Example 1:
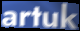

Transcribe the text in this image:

artuk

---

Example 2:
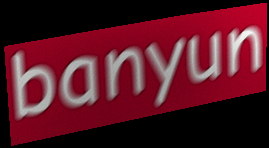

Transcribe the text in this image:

banyun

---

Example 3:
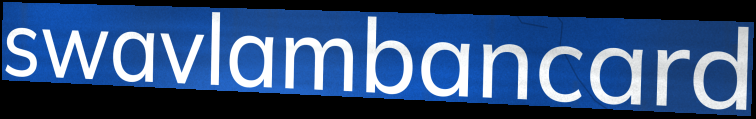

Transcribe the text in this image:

swavlambancard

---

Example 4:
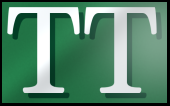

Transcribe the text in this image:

TT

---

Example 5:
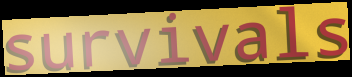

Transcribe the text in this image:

survivals